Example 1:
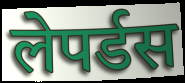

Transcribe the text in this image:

लेपर्डस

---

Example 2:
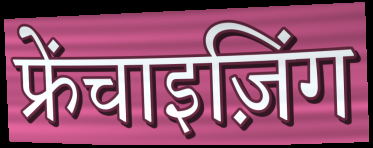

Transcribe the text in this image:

फ्रेंचाइज़िंग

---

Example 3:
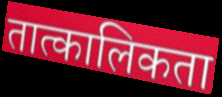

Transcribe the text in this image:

तात्कालिकता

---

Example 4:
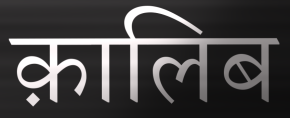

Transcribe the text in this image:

क़ालिब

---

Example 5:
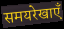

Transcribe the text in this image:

समयरेखाएँ